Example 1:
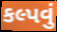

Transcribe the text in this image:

કલ્પવું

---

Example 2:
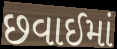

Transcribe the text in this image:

છવાઈમાં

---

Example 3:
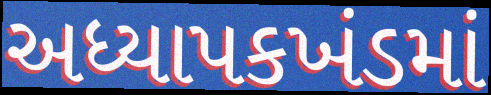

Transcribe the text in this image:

અધ્યાપકખંડમાં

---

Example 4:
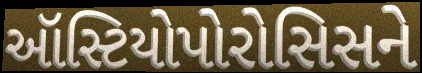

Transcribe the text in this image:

ઑસ્ટિયોપોરોસિસને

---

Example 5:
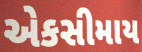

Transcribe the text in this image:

એકસીમાય